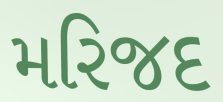
મરિજદ